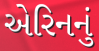
એરિનનું